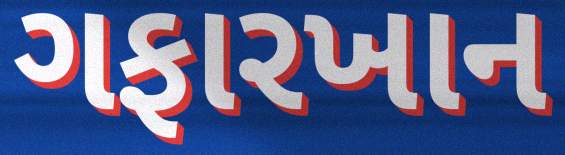
ગફારખાન